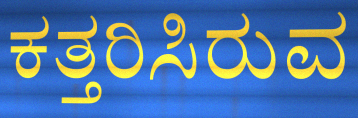
ಕತ್ತರಿಸಿರುವ